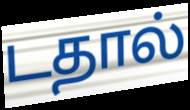
டதால்